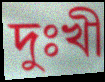
দুঃখী